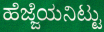
ಹೆಜ್ಜೆಯನಿಟ್ಟು